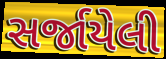
સર્જાયેલી